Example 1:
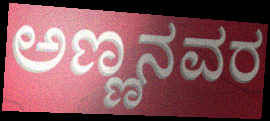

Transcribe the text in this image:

ಅಣ್ಣನವರ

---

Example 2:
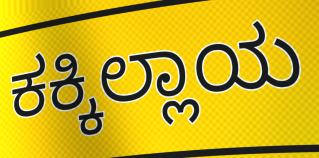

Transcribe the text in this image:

ಕಕ್ಕಿಲ್ಲಾಯ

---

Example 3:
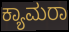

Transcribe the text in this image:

ಕ್ಯಾಮರಾ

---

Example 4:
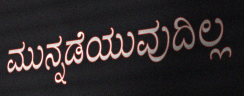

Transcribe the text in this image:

ಮುನ್ನಡೆಯುವುದಿಲ್ಲ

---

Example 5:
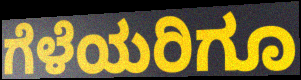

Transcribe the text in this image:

ಗೆಳೆಯರಿಗೂ